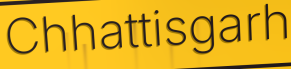
Chhattisgarh